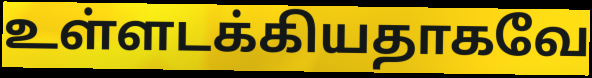
உள்ளடக்கியதாகவே